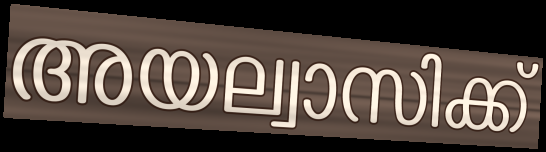
അയല്വാസിക്ക്